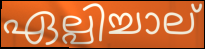
ഏല്പിച്ചാല്